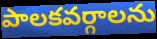
పాలకవర్గాలను